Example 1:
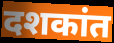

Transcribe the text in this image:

दशकांत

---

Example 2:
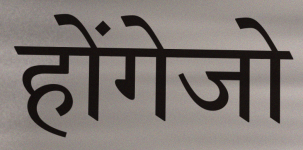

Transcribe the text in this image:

होंगेजो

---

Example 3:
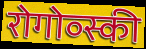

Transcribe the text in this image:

रोगोव्स्की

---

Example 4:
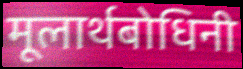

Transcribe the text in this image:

मूलार्थबोधिनी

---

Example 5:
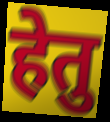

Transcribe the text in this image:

हेतु